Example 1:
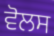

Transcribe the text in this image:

ਵੋਲਸ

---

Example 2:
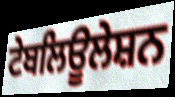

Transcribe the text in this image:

ਟੇਬਲਿਊਲੇਸ਼ਨ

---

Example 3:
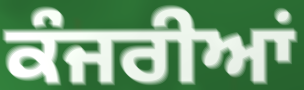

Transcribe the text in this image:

ਕੰਜਰੀਆਂ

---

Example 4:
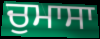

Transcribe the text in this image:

ਚੁਮਾਸਾ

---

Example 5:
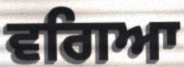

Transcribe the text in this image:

ਵਗਿਆ